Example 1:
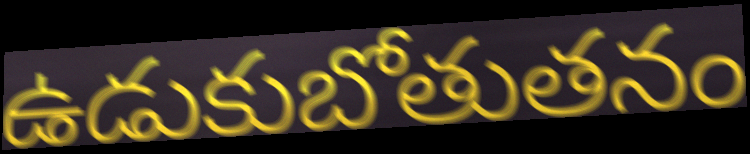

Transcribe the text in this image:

ఉడుకుబోతుతనం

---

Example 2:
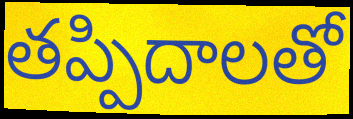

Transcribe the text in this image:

తప్పిదాలతో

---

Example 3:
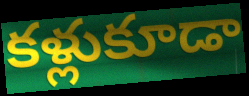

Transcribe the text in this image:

కళ్లుకూడా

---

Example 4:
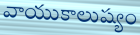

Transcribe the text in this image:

వాయుకాలుష్యం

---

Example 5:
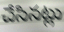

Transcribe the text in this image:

చేసినట్లు